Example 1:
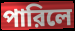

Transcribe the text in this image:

পারিলে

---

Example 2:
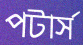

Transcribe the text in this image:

পটার্স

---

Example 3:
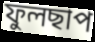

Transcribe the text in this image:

ফুলছাপ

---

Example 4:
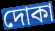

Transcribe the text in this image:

দোকা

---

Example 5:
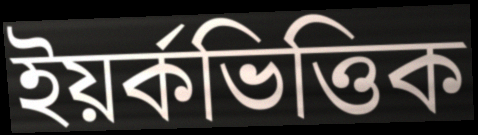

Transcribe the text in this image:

ইয়র্কভিত্তিক